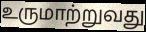
உருமாற்றுவது